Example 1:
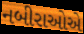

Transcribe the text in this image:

નબીરાઓએ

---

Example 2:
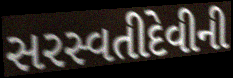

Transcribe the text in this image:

સરસ્વતીદેવીની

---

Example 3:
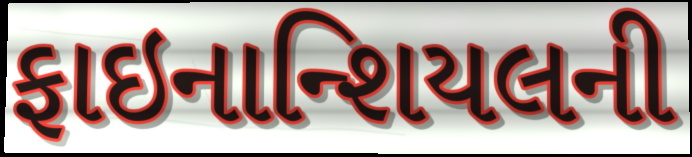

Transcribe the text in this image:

ફાઇનાન્શિયલની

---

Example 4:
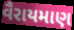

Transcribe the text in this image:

વૈરાયમાણ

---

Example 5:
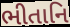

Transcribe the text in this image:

ભીતાનિ